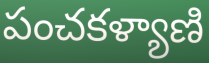
పంచకళ్యాణి